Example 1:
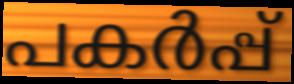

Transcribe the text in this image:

പകർപ്പ്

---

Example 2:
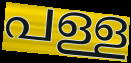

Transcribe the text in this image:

പള്ള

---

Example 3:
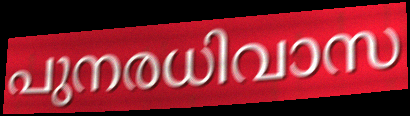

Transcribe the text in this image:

പുനരധിവാസ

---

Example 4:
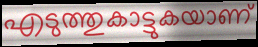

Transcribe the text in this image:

എടുത്തുകാട്ടുകയാണ്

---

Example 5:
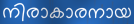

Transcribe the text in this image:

നിരാകാരനായ